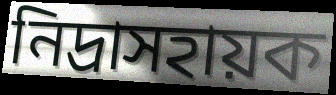
নিদ্রাসহায়ক